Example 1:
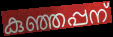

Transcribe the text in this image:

കുഞ്ഞപ്പന്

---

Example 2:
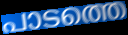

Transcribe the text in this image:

പാടത്തെ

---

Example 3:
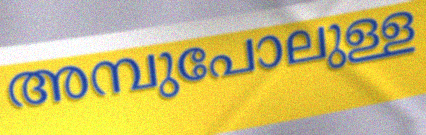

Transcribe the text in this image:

അമ്പുപോലുള്ള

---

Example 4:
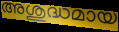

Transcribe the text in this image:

അശുദ്ധമായ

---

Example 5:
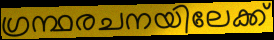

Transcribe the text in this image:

ഗ്രന്ഥരചനയിലേക്ക്